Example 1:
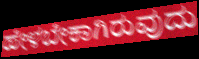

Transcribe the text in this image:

ಹೇಳಬೇಕಾಗಿರುವುದು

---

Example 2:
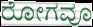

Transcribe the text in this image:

ರೋಗವೂ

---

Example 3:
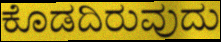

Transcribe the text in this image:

ಕೊಡದಿರುವುದು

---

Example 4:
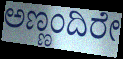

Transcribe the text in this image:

ಅಣ್ಣಂದಿರೇ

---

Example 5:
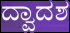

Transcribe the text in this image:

ದ್ವಾದಶ